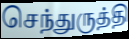
செந்துருத்தி